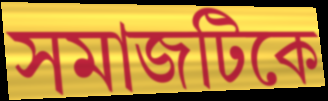
সমাজটিকে